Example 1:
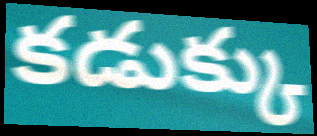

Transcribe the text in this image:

కడుక్కు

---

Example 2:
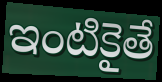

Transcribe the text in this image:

ఇంటికైతే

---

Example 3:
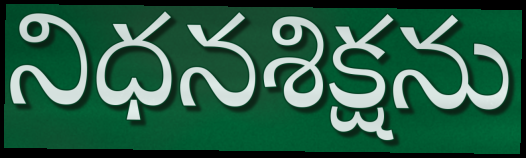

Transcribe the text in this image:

నిధనశిక్షను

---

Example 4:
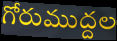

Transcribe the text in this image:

గోరుముద్దల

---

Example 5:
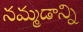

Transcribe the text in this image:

నమ్మడాన్ని